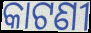
କାଟଣୀ